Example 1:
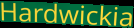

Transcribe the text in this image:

Hardwickia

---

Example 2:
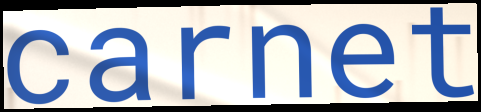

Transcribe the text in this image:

carnet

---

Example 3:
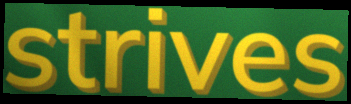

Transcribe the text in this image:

strives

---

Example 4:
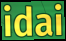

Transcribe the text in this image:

idai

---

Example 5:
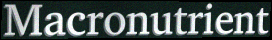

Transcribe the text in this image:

Macronutrient